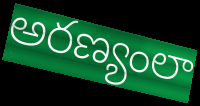
అరణ్యంలా